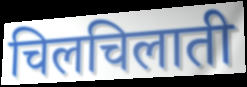
चिलचिलाती